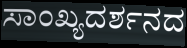
ಸಾಂಖ್ಯದರ್ಶನದ